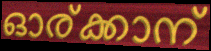
ഓര്ക്കാന്